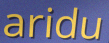
aridu